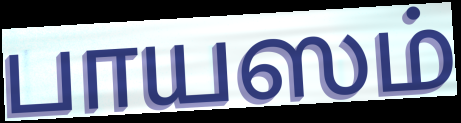
பாயஸம்